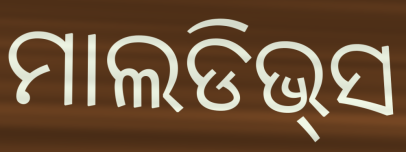
ମାଲଡିଭ୍‌ସ